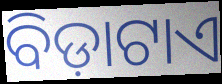
ବିଡ଼ାଟାଏ